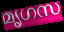
മൃഗസ